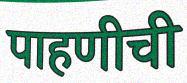
पाहणीची